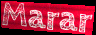
Marar